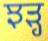
ਝੜ੍ਹ